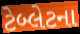
ટેબ્લેટના